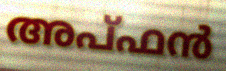
അപ്ഫൻ